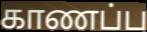
காணப்ப